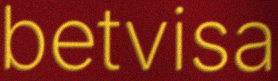
betvisa